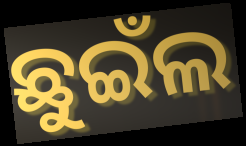
ଛୁଇଁଲ